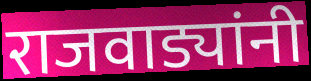
राजवाड्यांनी